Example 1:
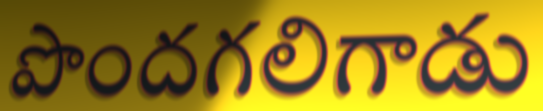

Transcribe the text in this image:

పొందగలిగాడు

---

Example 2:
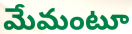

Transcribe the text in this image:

మేమంటూ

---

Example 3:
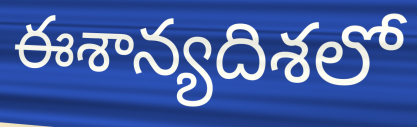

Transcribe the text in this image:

ఈశాన్యదిశలో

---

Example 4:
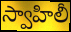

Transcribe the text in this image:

స్వాహిలీ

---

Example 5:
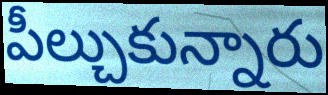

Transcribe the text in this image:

పీల్చుకున్నారు